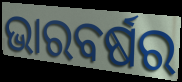
ଭାରବର୍ଷର